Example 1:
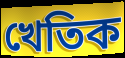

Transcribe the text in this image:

খেতিক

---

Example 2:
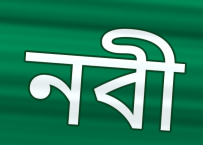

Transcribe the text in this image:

নবী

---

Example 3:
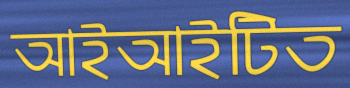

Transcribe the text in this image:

আইআইটিত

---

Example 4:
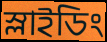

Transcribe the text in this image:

স্লাইডিং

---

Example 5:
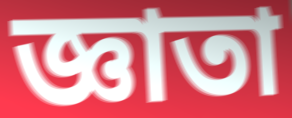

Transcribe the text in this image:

জ্ঞাতা